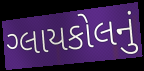
ગ્લાયકોલનું